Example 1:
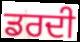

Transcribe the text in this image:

ਡਰਦੀ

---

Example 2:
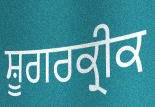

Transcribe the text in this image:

ਸ਼ੂਗਰਕ੍ਰੀਕ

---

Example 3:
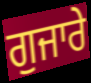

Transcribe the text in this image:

ਗੁਜਾਰੇ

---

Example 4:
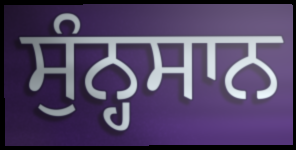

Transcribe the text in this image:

ਸੁੰਨ੍ਹਸਾਨ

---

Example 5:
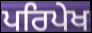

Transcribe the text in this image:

ਪਰਿਪੇਖ